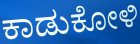
ಕಾಡುಕೋಳಿ